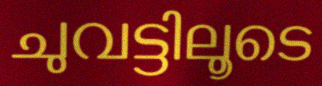
ചുവട്ടിലൂടെ